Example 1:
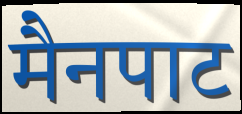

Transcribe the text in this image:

मैनपाट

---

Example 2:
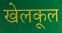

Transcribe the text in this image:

खेलकूल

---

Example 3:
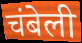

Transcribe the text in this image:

चंबेली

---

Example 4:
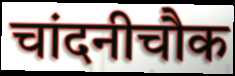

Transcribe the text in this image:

चांदनीचौक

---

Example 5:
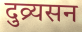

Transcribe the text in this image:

दुव्र्यसन